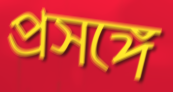
প্রসঙ্গে